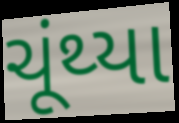
ચૂંથ્યા